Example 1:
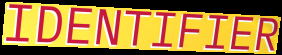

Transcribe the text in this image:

IDENTIFIER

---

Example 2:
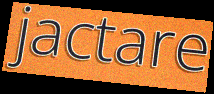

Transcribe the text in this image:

jactare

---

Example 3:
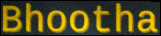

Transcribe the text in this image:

Bhootha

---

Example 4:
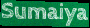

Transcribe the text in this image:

Sumaiya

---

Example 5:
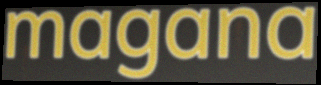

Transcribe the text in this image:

magana